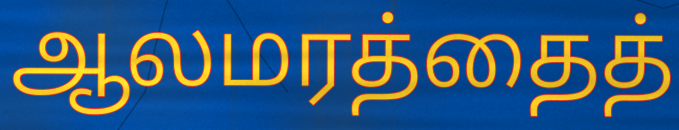
ஆலமரத்தைத்